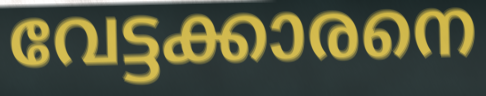
വേട്ടക്കാരനെ